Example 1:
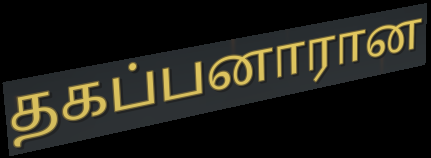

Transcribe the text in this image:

தகப்பனாரான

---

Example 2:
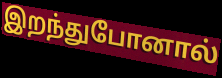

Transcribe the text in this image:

இறந்துபோனால்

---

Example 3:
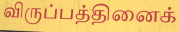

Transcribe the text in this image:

விருப்பத்தினைக்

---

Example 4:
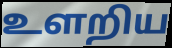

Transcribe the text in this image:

உளறிய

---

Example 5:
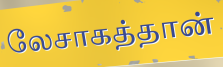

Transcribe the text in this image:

லேசாகத்தான்